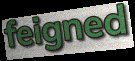
feigned